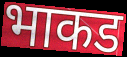
भाकड